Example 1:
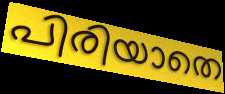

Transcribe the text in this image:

പിരിയാതെ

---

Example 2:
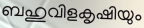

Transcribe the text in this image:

ബഹുവിളകൃഷിയും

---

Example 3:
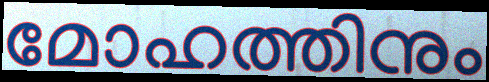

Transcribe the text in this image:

മോഹത്തിനും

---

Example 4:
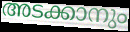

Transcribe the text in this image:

അടക്കാനും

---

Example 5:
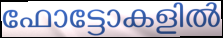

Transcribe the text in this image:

ഫോട്ടോകളിൽ